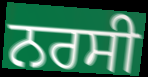
ਨਰਸੀ